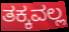
ತಕ್ಕವಲ್ಲ